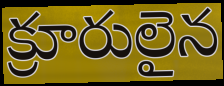
క్రూరులైన